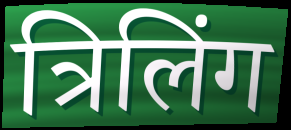
त्रिलिंग